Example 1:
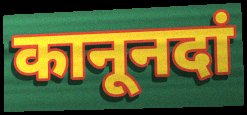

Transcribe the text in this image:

कानूनदां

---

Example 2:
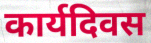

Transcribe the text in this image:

कार्यदिवस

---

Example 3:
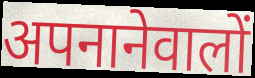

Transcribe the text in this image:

अपनानेवालों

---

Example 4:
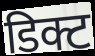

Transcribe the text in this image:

डिक्ट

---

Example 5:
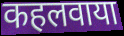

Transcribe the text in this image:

कहलवाया